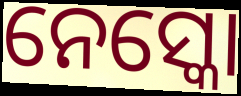
ନେସ୍କୋ